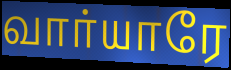
வார்யாரே